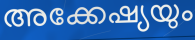
അക്കേഷ്യയും